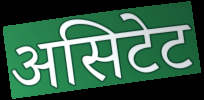
असिटेट